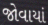
જોવાયાં